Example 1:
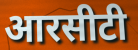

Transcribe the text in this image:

आरसीटी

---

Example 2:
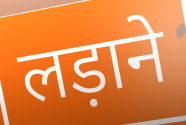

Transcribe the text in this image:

लड़ाने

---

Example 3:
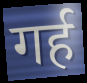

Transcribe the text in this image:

गर्ह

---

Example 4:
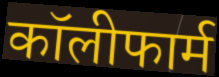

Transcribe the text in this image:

कॉलीफार्म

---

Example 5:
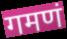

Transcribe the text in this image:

गमणं